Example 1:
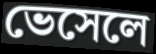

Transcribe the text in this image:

ভেসেলে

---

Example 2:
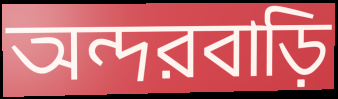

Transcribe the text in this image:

অন্দরবাড়ি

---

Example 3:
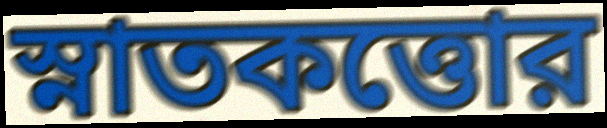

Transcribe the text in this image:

স্নাতকত্তোর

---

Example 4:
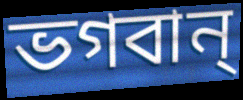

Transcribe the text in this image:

ভগবান্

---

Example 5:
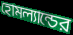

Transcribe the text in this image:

হোমল্যান্ডের